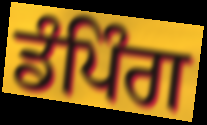
ਡੰਪਿੰਗ